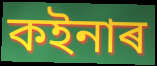
কইনাৰ